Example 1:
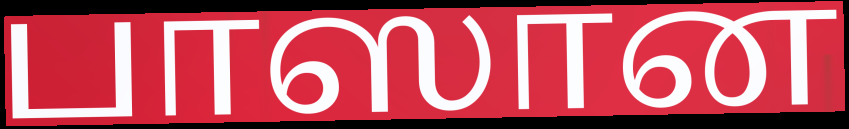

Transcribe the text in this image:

பாஸான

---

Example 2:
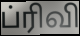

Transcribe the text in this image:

ப்ரிவி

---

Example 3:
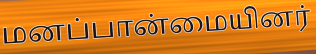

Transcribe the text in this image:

மனப்பான்மையினர்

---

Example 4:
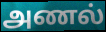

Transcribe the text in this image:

அணல்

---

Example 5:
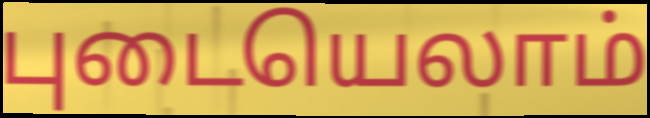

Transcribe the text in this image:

புடையெலாம்